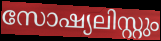
സോഷ്യലിസ്റ്റും